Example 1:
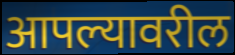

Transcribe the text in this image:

आपल्यावरील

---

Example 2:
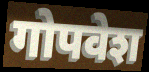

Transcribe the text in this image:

गोपवेश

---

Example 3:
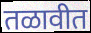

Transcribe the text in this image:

तळावीत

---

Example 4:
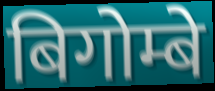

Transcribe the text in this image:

बिगोम्बे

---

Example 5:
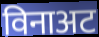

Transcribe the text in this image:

विनाअट